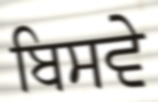
ਬਿਸਵੇ